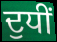
ਦੁਧੀਂ